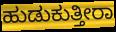
ಹುಡುಕುತ್ತೀರಾ